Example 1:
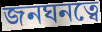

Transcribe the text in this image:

জনঘনত্বে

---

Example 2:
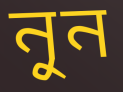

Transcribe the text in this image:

নুন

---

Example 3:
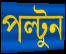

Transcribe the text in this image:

পল্টুন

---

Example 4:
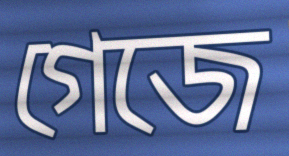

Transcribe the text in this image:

গেজে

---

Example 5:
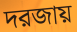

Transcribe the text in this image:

দরজায়